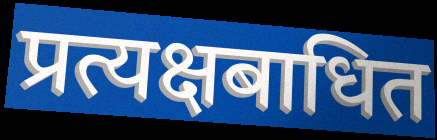
प्रत्यक्षबाधित